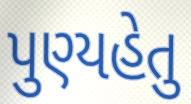
પુણ્યહેતુ